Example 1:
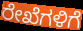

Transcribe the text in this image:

ರೇಖೆಗಳಿಗೆ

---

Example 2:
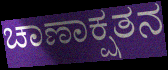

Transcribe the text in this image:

ಚಾಣಾಕ್ಷತನ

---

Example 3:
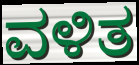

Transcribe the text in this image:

ವಳಿತ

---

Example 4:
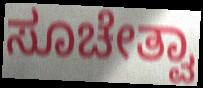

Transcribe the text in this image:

ಸೂಚೇತ್ವಾ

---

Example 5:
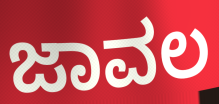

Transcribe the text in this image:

ಜಾವಲ